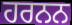
ਹਰਨਨ